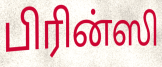
பிரின்ஸி